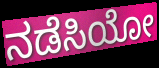
ನಡೆಸಿಯೋ